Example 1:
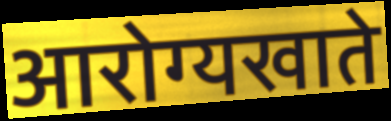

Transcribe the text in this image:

आरोग्यखाते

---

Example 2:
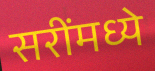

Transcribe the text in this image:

सरींमध्ये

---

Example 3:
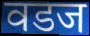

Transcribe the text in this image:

वडज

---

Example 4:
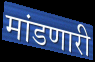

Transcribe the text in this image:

मांडणारी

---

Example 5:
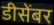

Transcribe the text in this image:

डीसेंबर